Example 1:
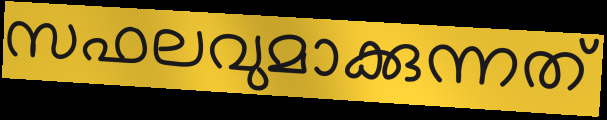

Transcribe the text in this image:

സഫലവുമാക്കുന്നത്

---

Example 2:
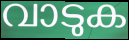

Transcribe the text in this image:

വാടുക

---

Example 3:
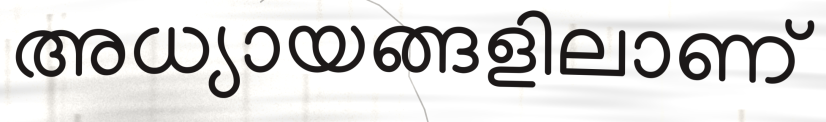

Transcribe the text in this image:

അധ്യായങ്ങളിലാണ്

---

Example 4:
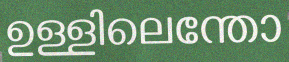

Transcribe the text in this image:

ഉള്ളിലെന്തോ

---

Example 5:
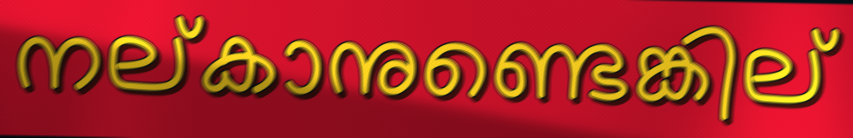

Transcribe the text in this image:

നല്കാനുണ്ടെങ്കില്